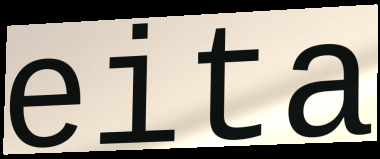
eita